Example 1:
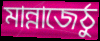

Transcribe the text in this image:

মান্নাজেঠু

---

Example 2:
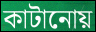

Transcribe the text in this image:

কাটানোয়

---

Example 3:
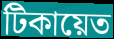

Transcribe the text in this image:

টিকায়েত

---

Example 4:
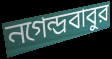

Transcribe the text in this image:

নগেন্দ্রবাবুর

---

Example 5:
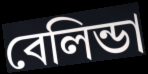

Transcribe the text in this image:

বেলিন্ডা